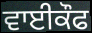
ਵਾਈਕੌਫ